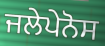
ਜਲੇਪੇਨੋਸ